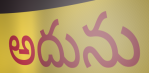
అదును